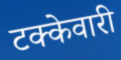
टक्केवारी